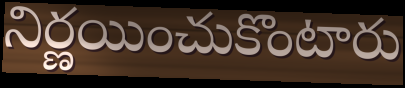
నిర్ణయించుకొంటారు